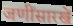
जणींसारखें